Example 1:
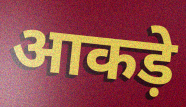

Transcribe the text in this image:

आकड़े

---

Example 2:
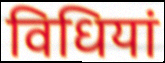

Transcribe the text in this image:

विधियां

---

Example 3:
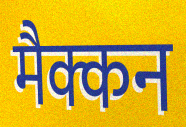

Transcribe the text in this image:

मैक्कन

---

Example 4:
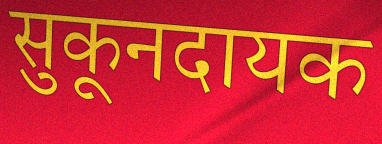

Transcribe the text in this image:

सुकूनदायक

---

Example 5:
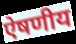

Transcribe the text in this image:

ऐषणीय